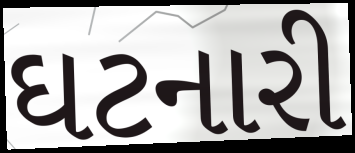
ઘટનારી